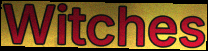
Witches